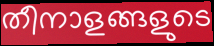
തീനാളങ്ങളുടെ